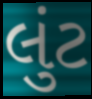
લુંટ